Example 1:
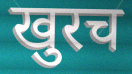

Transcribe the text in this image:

खुरच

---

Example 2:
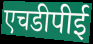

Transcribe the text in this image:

एचडीपीई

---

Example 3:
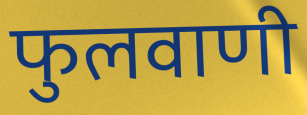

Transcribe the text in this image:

फुलवाणी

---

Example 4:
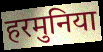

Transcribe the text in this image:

हरमुनिया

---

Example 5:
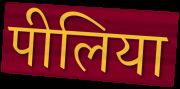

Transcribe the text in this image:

पीलिया